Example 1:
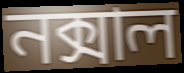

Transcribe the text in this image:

নক্সাল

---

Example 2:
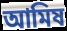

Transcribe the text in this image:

আমিষ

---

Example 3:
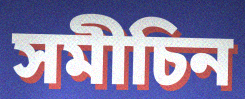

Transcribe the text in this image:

সমীচিন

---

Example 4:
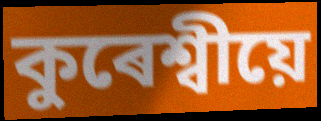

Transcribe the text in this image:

কুৰেশ্বীয়ে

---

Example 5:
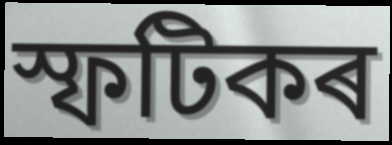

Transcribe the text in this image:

স্ফটিকৰ